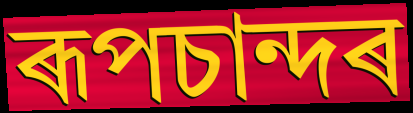
ৰূপচান্দৰ